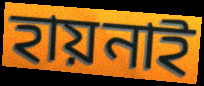
হায়নাই